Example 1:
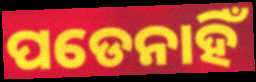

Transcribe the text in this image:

ପଡେନାହିଁ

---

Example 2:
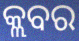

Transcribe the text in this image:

କ୍ଲବର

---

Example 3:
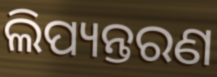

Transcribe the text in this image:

ଲିପ୍ୟନ୍ତରଣ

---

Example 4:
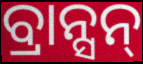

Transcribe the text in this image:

ବ୍ରାନ୍ସନ୍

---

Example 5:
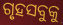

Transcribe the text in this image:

ଗୃହସବୁକୁ